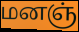
மனஞ்